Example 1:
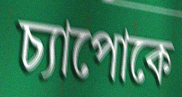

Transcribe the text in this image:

চ্যাপোকে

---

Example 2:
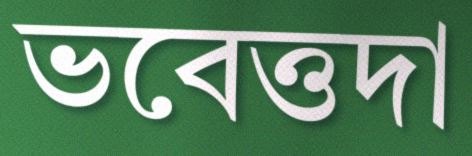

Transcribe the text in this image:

ভবেত্তদা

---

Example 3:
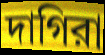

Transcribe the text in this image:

দাগিরা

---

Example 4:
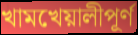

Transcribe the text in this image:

খামখেয়ালীপূর্ণ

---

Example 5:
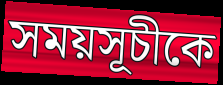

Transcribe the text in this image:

সময়সূচীকে